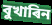
বুখাৰিন